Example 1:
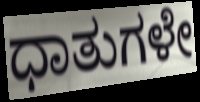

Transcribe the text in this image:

ಧಾತುಗಳೇ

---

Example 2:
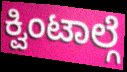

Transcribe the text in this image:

ಕ್ವಿಂಟಾಲ್ಗೆ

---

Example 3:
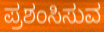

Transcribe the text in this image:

ಪ್ರಶಂಸಿಸುವ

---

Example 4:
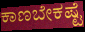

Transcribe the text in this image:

ಕಾಣಬೇಕಷ್ಟೆ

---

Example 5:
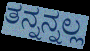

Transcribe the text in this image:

ತನ್ನನ್ನಲ್ಲ